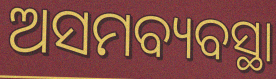
ଅସମବ୍ୟବସ୍ଥା